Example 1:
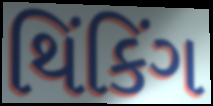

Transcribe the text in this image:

થિંકિંગ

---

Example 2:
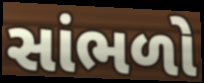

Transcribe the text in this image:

સાંભળો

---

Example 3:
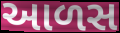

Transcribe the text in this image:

આળસ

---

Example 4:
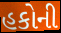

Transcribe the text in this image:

હકોની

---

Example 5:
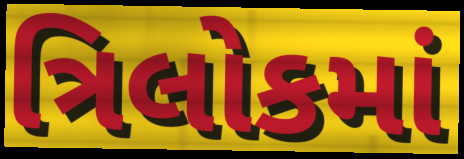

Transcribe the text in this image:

ત્રિલોકમાં